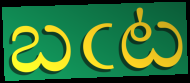
బఁట